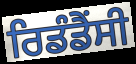
ਰਿਡੰਡੈਂਸੀ